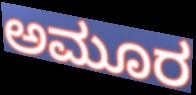
ಅಮೂರ